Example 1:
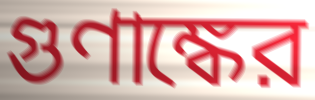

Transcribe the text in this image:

গুণাঙ্কের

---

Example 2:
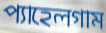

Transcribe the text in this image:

প্যাহেলগাম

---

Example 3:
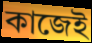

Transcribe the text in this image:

কাজেই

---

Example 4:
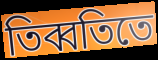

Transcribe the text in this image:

তিব্বতিতে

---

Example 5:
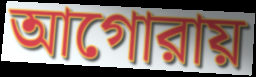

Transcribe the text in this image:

আগোরায়